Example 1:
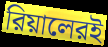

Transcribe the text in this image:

রিয়ালেরই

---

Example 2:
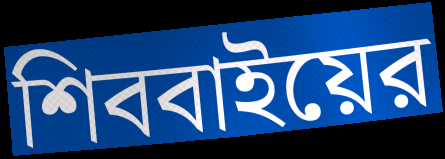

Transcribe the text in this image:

শিববাইয়ের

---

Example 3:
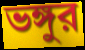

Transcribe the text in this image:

ভঙ্গুর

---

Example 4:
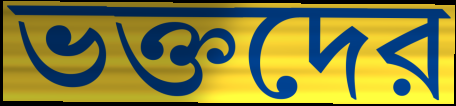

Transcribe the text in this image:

ভক্তদের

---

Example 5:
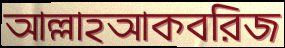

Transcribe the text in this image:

আল্লাহআকবরিজ